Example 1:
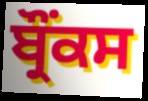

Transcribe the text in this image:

ਬ੍ਰੌਂਕਸ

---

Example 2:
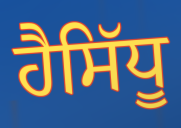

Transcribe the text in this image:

ਹੈਸਿੱਧੂ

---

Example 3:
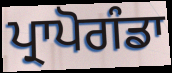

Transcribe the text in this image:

ਪ੍ਰਾਪੋਗੰਡਾ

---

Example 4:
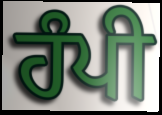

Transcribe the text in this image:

ਹੰਪੀ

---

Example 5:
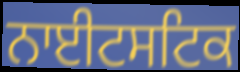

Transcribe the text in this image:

ਨਾਈਟਸਟਿਕ